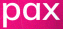
pax